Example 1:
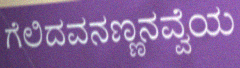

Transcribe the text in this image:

ಗೆಲಿದವನಣ್ಣನವ್ವೆಯ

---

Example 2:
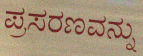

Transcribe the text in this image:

ಪ್ರಸರಣವನ್ನು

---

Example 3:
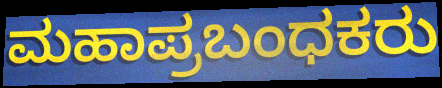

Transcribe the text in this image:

ಮಹಾಪ್ರಬಂಧಕರು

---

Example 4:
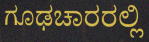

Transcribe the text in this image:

ಗೂಢಚಾರರಲ್ಲಿ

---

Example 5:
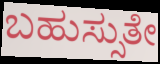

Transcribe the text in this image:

ಬಹುಸ್ಸುತೇ